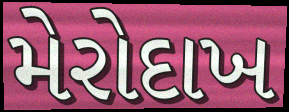
મેરોદાખ